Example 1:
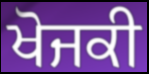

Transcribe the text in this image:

ਖੋਜਕੀ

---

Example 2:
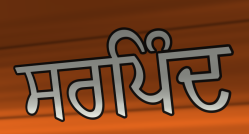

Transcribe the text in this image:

ਸਰਪਿੰਦ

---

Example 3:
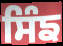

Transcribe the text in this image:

ਸਿੰਙ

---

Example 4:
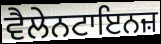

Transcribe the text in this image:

ਵੈਲੇਨਟਾਇਨਜ਼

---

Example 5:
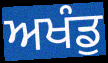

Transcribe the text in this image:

ਅਖੰਡੁ